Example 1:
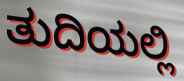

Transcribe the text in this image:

ತುದಿಯಲ್ಲಿ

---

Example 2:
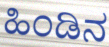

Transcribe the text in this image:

ಹಿಂಡಿನ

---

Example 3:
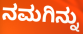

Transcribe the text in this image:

ನಮಗಿನ್ನು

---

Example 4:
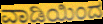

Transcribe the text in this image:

ವಾಡಿಯಿಂದ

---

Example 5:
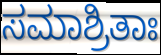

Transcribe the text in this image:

ಸಮಾಶ್ರಿತಾಃ